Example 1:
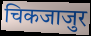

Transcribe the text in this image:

चिकजाजुर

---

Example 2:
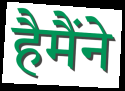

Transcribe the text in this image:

हैमैंने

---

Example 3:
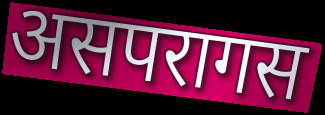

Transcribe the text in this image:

असपरागस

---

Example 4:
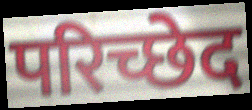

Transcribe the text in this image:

परिच्छेद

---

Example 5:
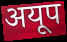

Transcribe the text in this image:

अयूप